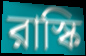
রাস্কি